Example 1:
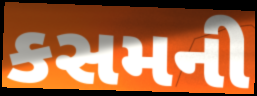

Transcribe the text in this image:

કસમની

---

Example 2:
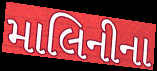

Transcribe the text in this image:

માલિનીના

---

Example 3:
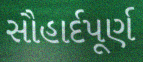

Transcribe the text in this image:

સૌહાર્દપૂર્ણ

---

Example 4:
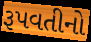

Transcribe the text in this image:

રૂપવતીનો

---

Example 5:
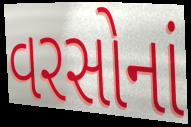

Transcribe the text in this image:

વરસોનાં